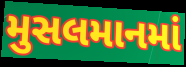
મુસલમાનમાં